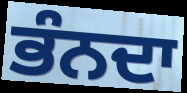
ਭੰਨਦਾ